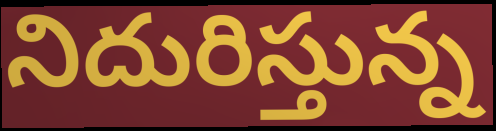
నిదురిస్తున్న